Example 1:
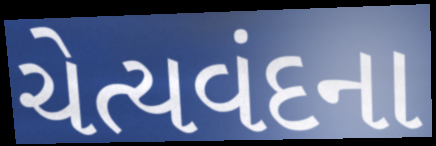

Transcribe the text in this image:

ચેત્યવંદના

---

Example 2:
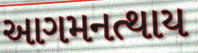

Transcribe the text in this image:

આગમનત્થાય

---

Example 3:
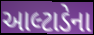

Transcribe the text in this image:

આલ્ટાડેના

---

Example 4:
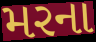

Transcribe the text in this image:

મરના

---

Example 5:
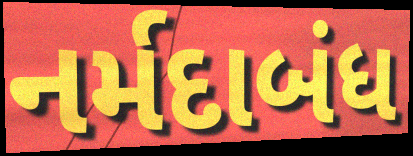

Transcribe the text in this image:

નર્મદાબંધ